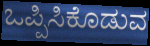
ಒಪ್ಪಿಸಿಕೊಡುವ